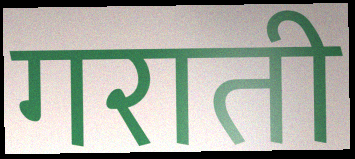
गराती